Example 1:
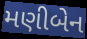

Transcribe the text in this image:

મણીબેન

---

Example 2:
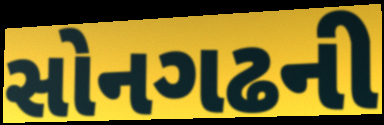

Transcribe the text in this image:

સોનગઢની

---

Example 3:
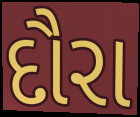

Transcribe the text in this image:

દૌરા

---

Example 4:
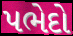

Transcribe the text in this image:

પભેદો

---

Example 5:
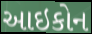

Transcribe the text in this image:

આઇકોન